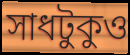
সাধটুকুও